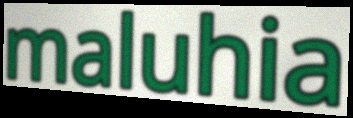
maluhia